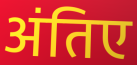
अंतिए